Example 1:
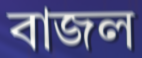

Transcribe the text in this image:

বাজল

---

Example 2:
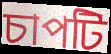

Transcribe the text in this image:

চাপটি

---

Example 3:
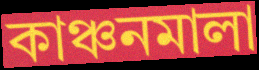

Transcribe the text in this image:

কাঞ্চনমালা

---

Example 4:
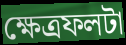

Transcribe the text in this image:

ক্ষেত্রফলটা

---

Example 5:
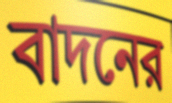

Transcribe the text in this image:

বাদনের